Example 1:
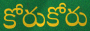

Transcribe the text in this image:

కోరుకోరు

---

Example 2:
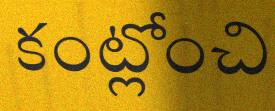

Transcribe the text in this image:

కంట్లోంచి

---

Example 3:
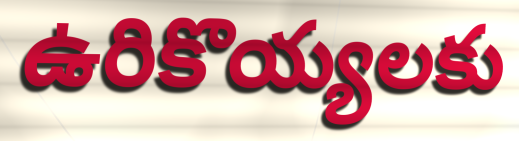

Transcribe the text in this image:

ఉరికొయ్యలకు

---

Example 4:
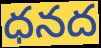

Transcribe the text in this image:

ధనద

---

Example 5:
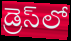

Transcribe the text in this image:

డ్రెస్‌లో